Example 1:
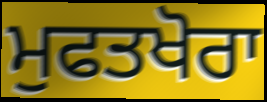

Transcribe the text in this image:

ਮੁਫਤਖੋਰਾ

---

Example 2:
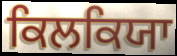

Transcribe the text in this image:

ਕਿਲਕਿਯਾ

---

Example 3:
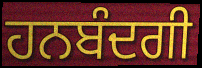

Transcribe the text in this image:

ਹਨਬੰਦਗੀ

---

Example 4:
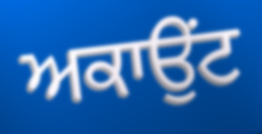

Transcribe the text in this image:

ਅਕਾਉਂਟ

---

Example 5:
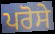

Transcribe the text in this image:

ਪਰੋਸੇ